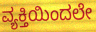
ವ್ಯಕ್ತಿಯಿಂದಲೇ